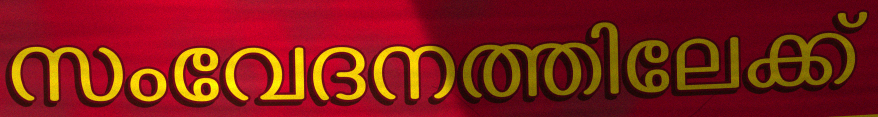
സംവേദനത്തിലേക്ക്